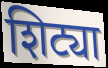
शिट्या